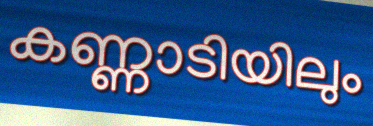
കണ്ണാടിയിലും